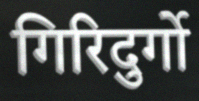
गिरिदुर्गो